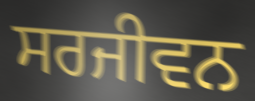
ਸਰਜੀਵਨ